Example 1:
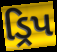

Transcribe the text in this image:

ડ્રિપ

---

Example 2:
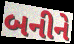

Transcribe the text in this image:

બનીને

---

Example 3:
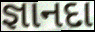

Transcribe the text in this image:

જ્ઞાનદા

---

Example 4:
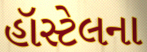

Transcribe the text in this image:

હૉસ્ટેલના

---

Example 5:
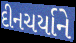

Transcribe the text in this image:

દીનચર્યાને